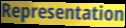
Representation